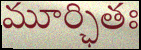
మూర్ఛితః